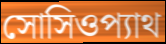
সোসিওপ্যাথ